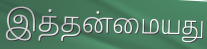
இத்தன்மையது